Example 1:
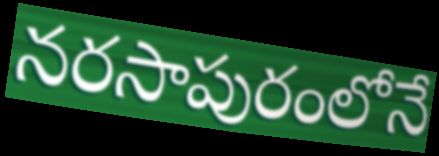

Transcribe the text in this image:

నరసాపురంలోనే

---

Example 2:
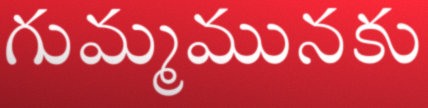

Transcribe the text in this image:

గుమ్మమునకు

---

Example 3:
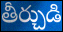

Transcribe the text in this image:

తీర్చుడి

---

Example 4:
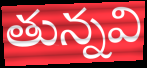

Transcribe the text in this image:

తున్నవి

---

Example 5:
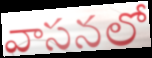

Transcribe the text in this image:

వాసనలో